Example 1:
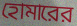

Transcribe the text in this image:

হোমারের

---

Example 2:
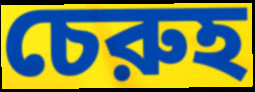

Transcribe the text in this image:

চেরুহ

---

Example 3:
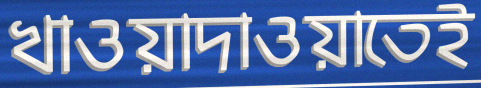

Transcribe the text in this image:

খাওয়াদাওয়াতেই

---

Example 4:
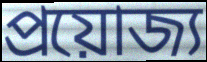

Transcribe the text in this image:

প্রয়োজ্য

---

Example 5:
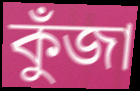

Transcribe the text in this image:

কুঁজা